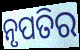
ନୃପତିର